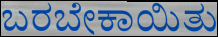
ಬರಬೇಕಾಯಿತು